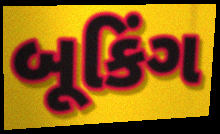
બૂકિંગ